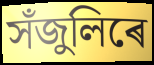
সঁজুলিৰে